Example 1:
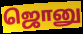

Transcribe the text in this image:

ஜொனு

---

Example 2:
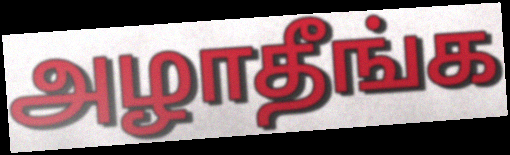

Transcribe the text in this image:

அழாதீங்க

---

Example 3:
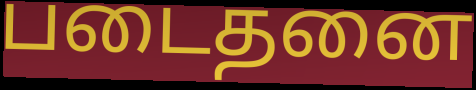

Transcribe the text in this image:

படைதனை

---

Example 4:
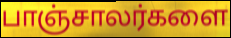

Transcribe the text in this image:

பாஞ்சாலர்களை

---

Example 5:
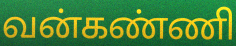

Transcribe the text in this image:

வன்கண்ணி